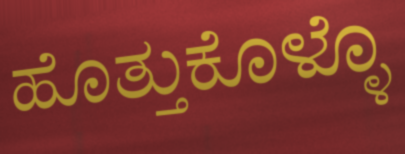
ಹೊತ್ತುಕೊಳ್ಳೊ